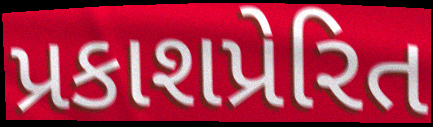
પ્રકાશપ્રેરિત